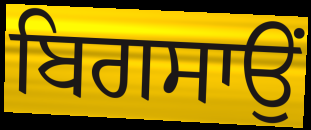
ਬਿਗਸਾਉਂ